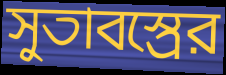
সুতাবস্ত্রের